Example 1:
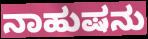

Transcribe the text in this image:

ನಾಹುಷನು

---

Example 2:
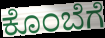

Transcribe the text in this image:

ಕೊಂಬೆಗೆ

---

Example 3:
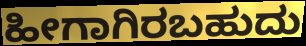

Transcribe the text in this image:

ಹೀಗಾಗಿರಬಹುದು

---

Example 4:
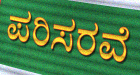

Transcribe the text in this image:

ಪರಿಸರವೆ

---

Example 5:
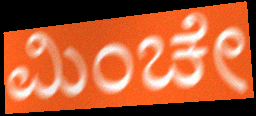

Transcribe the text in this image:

ಮಿಂಚೇ